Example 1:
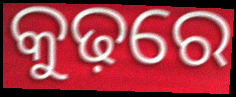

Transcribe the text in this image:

କୁଢ଼ରେ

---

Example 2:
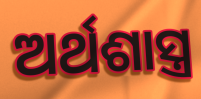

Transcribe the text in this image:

ଅର୍ଥଶାସ୍ତ୍ର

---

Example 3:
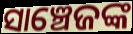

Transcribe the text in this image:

ସାଞ୍ଚେଜଙ୍କ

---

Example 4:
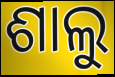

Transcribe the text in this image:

ଶାଲୁ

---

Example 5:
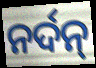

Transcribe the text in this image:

ନର୍ଦନ୍